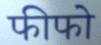
फीफो